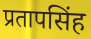
प्रतापसिंह